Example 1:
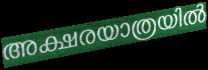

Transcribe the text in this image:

അക്ഷരയാത്രയിൽ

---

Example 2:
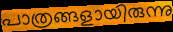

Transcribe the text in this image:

പാത്രങ്ങളായിരുന്നു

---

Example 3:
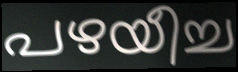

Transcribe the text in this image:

പഴയീച്ച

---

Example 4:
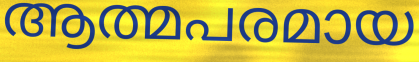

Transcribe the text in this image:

ആത്മപരമായ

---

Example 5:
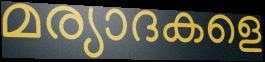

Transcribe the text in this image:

മര്യാദകളെ